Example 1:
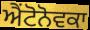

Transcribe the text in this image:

ਐਂਟੋਨੋਵਕਾ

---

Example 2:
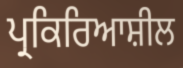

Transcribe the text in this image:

ਪ੍ਰਕਿਰਿਆਸ਼ੀਲ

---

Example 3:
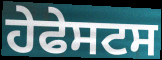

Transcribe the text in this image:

ਹੇਫੇਸਟਸ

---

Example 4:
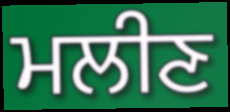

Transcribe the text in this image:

ਮਲੀਣ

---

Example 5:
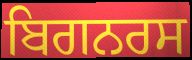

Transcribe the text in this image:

ਬਿਗਨਰਸ